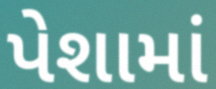
પેશામાં